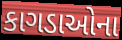
કાગડાઓના